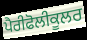
ਪੈਰੀਫੋਲੀਕੂਲਰ